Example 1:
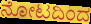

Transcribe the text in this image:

ನೋಟದಿಂದ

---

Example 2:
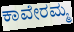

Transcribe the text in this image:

ಕಾವೇರಮ್ಮ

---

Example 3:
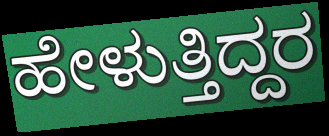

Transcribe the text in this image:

ಹೇಳುತ್ತಿದ್ದರ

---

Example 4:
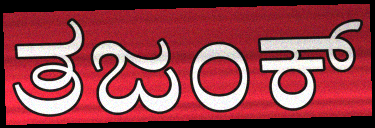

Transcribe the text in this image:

ತಜಂಕ್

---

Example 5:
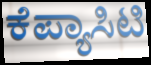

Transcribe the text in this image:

ಕೆಪ್ಯಾಸಿಟಿ